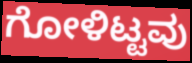
ಗೋಳಿಟ್ಟವು